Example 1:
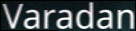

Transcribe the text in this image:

Varadan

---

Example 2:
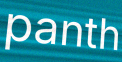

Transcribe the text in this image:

panth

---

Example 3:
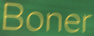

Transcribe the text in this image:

Boner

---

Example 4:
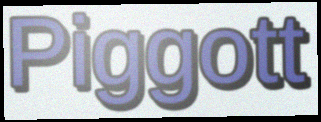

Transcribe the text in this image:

Piggott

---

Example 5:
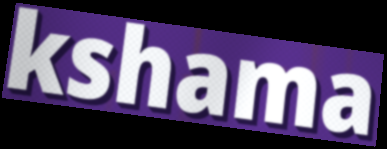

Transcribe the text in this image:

kshama